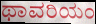
ಥಾವರಿಯಂ